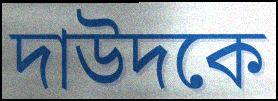
দাউদকে